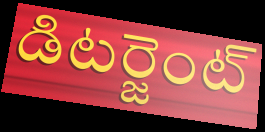
డిటర్జెంట్